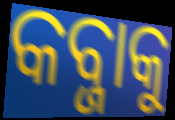
କବ୍ଜାକୁ